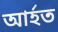
আর্হত